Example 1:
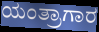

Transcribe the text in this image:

ಯಂತ್ರಾಗಾರ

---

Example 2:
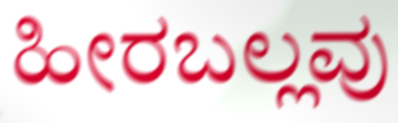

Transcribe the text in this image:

ಹೀರಬಲ್ಲವು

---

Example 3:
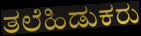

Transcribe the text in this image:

ತಲೆಹಿಡುಕರು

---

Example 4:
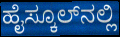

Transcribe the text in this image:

ಹೈಸ್ಕೂಲ್‌ನಲ್ಲಿ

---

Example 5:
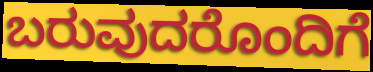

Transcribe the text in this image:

ಬರುವುದರೊಂದಿಗೆ